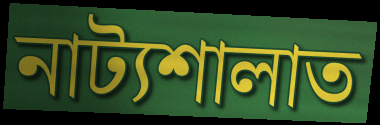
নাট্যশালাত